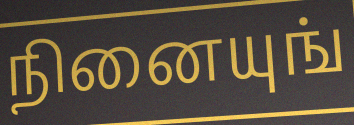
நினையுங்